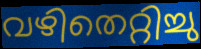
വഴിതെറ്റിച്ചു